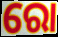
ରୋ